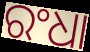
ରଂଧା